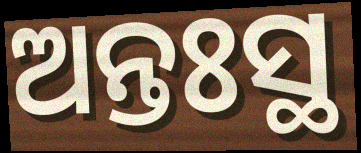
ଅନ୍ତଃସ୍ଥ